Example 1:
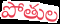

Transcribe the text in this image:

పోతుల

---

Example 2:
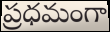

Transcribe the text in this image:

ప్రధమంగా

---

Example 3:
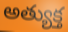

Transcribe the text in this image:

అత్యుక్త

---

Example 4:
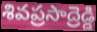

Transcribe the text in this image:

శివప్రసాద్రెడ్డి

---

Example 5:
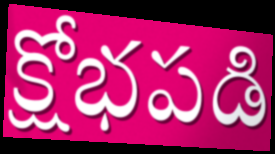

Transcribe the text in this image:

క్షోభపడి